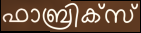
ഫാബ്രിക്സ്